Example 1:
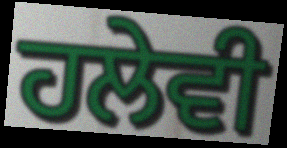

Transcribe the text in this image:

ਹਲੇਵੀ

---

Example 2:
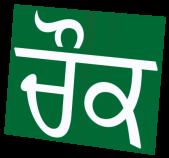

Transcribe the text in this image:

ਚੌਕ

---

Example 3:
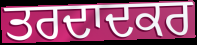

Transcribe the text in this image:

ਤਰਦਾਦਕਰ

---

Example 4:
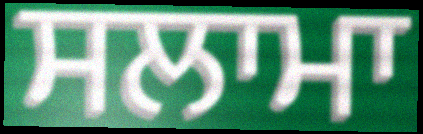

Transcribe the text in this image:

ਸਲਾਮਾ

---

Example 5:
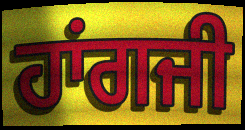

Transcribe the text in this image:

ਹਾਂਗਜੀ